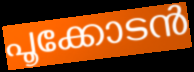
പൂക്കോടൻ